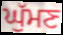
ਘੁੱਮਣ